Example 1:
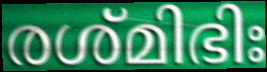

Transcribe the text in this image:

രശ്മിഭിഃ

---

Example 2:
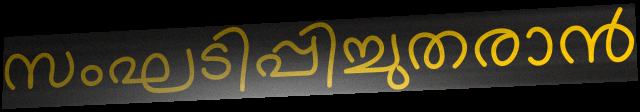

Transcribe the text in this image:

സംഘടിപ്പിച്ചുതരാൻ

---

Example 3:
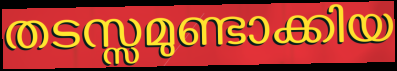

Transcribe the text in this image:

തടസ്സമുണ്ടാക്കിയ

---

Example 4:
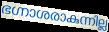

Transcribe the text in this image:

ഭഗ്നാശരാകുന്നില്ല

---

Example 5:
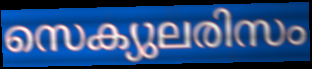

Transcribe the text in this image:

സെക്യുലരിസം